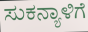
ಸುಕನ್ಯಾಳಿಗೆ